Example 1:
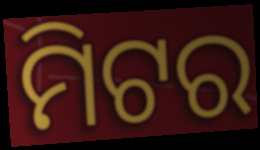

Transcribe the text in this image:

ମିଟର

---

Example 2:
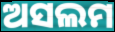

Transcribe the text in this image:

ଅସଲମ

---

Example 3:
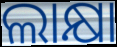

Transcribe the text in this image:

ଲାକ୍ଷା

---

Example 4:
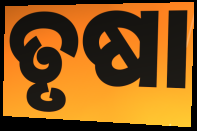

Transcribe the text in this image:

ତୃଷା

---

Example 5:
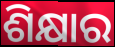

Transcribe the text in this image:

ଶିକ୍ଷାର